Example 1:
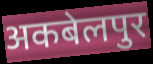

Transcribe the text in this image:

अकबेलपुर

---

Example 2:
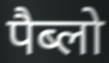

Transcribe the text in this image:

पैब्लो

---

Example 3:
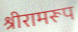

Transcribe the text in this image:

श्रीरामरूप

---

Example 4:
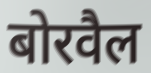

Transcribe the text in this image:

बोरवैल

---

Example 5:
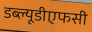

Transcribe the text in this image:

डब्ल्यूडीएफसी